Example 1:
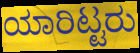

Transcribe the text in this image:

ಯಾರಿಟ್ಟರು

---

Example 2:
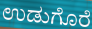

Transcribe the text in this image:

ಉಡುಗೊರೆ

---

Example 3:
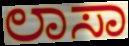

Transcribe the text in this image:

ಲಾಸಾ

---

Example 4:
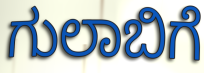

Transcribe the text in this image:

ಗುಲಾಬಿಗೆ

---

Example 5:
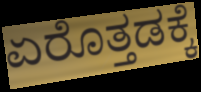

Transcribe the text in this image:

ಏರೊತ್ತಡಕ್ಕೆ